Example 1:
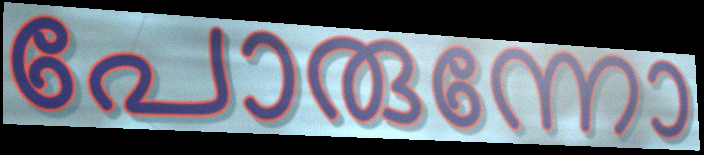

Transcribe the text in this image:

പോരുന്നോ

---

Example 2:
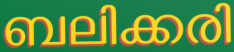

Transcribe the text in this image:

ബലിക്കരി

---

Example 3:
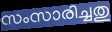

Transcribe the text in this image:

സംസാരിച്ചതു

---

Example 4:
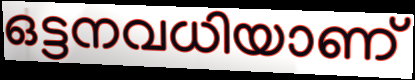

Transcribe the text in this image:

ഒട്ടനവധിയാണ്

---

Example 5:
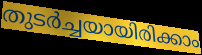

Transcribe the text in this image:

തുടർച്ചയായിരിക്കാം